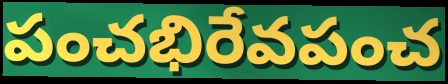
పంచభిరేవపంచ